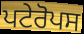
ਪਟੇਰੋਪਸ